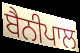
ਬੈਨੀਪਾਲ